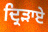
ਦ੍ਰਿੜਾਏ